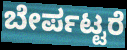
ಬೇರ್ಪಟ್ಟರೆ